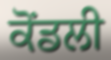
ਕੋਂਡਲੀ